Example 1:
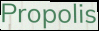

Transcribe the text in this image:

Propolis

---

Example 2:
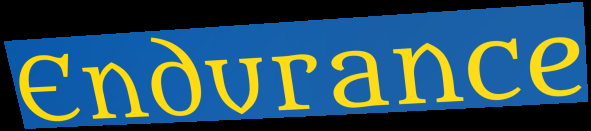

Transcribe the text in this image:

Endurance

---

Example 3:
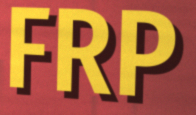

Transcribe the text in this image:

FRP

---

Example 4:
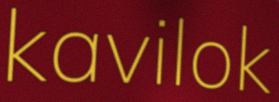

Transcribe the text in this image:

kavilok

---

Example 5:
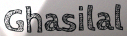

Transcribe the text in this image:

Ghasilal